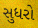
સુધરો